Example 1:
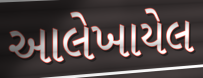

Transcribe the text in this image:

આલેખાયેલ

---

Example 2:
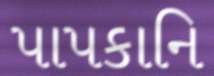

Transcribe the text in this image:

પાપકાનિ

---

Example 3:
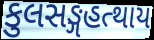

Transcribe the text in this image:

કુલસઙ્ગહત્થાય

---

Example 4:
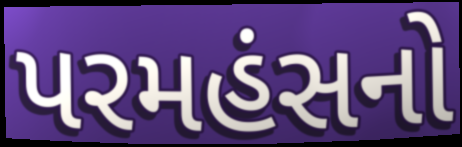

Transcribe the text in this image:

પરમહંસનો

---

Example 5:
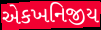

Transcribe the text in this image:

એકખનિજીય